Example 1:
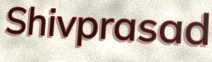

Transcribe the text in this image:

Shivprasad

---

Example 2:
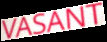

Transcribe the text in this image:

VASANT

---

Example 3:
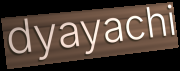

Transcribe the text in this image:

dyayachi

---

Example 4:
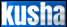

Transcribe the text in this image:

kusha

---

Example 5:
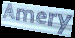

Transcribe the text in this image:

Amery